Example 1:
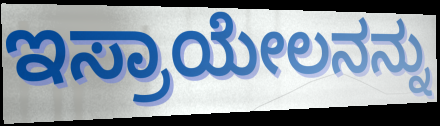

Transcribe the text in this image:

ಇಸ್ರಾಯೇಲನನ್ನು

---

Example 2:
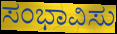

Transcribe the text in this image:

ಸಂಭಾವಿಸು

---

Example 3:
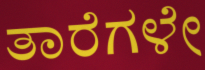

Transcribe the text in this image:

ತಾರೆಗಳೇ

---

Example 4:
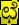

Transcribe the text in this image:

ಛೆ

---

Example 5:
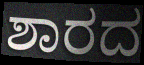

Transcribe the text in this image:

ಶಾರದ